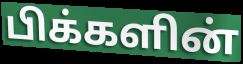
பிக்களின்